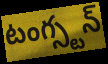
టంగ్స్టన్